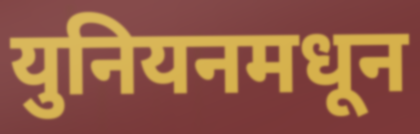
युनियनमधून